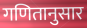
गणितानुसार